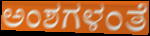
ಅಂಶಗಳಂತೆ